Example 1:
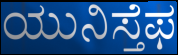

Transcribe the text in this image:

ಯುನಿಸ್ತೆಫ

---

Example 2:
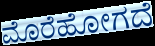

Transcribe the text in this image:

ಮೊರೆಹೋಗದೆ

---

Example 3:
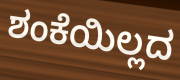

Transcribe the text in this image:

ಶಂಕೆಯಿಲ್ಲದ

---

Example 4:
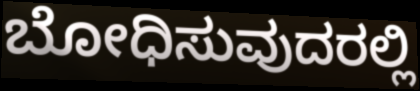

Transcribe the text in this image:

ಬೋಧಿಸುವುದರಲ್ಲಿ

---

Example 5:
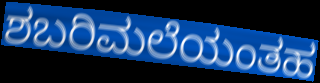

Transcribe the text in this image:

ಶಬರಿಮಲೆಯಂತಹ